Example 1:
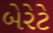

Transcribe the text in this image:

બેરેટે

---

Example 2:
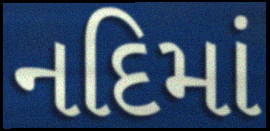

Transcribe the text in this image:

નદિમાં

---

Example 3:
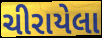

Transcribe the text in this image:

ચીરાયેલા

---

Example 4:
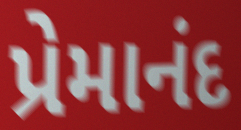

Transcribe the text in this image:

પ્રેમાનંદ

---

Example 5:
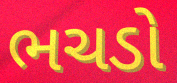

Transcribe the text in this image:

ભચડો